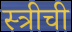
स्त्रीची